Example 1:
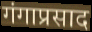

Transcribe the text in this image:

गंगाप्रसाद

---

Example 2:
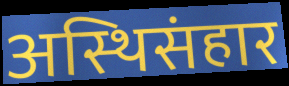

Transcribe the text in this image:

अस्थिसंहार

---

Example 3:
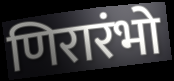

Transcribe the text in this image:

णिरारंभो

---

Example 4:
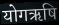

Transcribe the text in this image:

योगऋषि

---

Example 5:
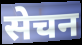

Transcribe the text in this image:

सेचन